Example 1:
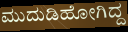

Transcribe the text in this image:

ಮುದುಡಿಹೋಗಿದ್ದ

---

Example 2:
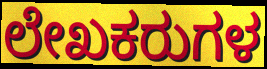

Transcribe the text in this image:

ಲೇಖಕರುಗಳ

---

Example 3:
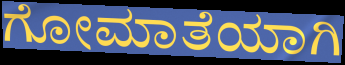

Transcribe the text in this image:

ಗೋಮಾತೆಯಾಗಿ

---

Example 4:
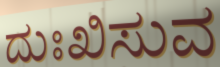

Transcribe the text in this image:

ದುಃಖಿಸುವ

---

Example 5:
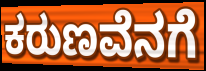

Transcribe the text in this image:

ಕರುಣವೆನಗೆ